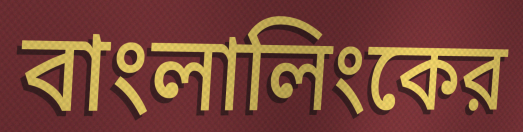
বাংলালিংকের